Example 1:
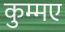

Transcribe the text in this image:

कुम्मए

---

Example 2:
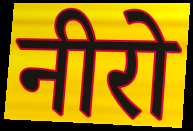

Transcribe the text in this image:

नीरो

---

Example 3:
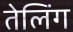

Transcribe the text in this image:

तेलिंग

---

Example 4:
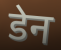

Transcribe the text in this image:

डेन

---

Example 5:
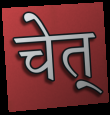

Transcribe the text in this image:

चेत्